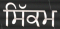
ਸਿੱਕਮ